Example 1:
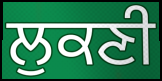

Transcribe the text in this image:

ਲੁਕਣੀ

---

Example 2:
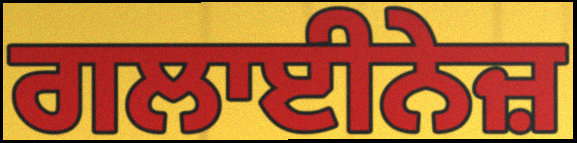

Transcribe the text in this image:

ਗਲਾਈਨੇਜ਼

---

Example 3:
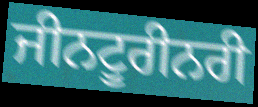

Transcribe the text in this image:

ਜੀਨਟੂਰੀਨਰੀ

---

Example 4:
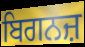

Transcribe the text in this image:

ਬਿਗਨਜ਼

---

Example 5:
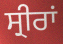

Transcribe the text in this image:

ਸ੍ਰੀਰਾਂ